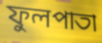
ফুলপাতা